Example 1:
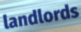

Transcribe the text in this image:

landlords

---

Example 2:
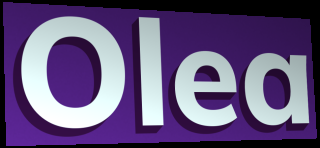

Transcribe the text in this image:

Olea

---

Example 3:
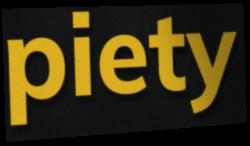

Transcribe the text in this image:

piety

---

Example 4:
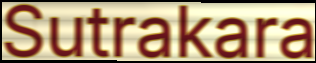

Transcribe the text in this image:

Sutrakara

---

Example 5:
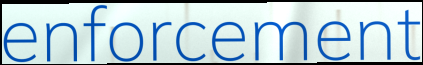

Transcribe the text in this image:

enforcement